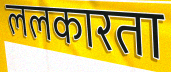
ललकारता